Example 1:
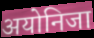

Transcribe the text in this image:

अयोनिजा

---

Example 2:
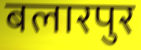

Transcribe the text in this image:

बलारपुर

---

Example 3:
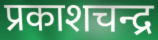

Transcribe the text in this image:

प्रकाशचन्द्र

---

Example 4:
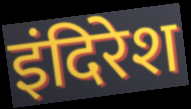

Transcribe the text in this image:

इंदिरेश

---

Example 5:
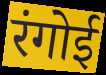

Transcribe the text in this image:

रंगोई